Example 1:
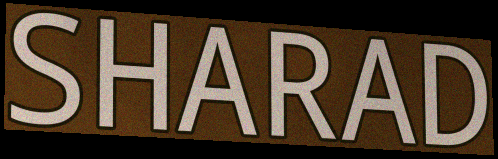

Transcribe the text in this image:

SHARAD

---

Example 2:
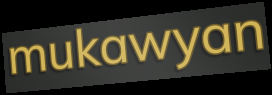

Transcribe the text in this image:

mukawyan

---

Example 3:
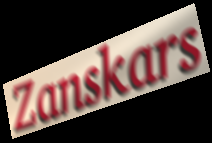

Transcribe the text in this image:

Zanskars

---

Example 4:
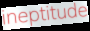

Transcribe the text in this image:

ineptitude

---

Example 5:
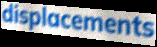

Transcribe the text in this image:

displacements